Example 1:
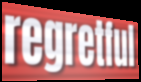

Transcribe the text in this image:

regretful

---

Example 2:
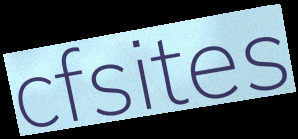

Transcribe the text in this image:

cfsites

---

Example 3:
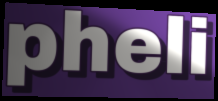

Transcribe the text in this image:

pheli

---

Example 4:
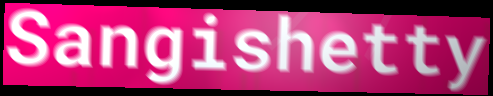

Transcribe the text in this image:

Sangishetty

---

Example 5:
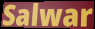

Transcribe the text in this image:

Salwar